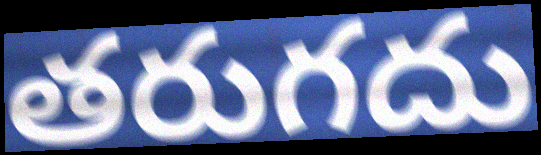
తరుగదు